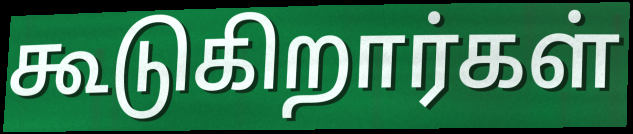
கூடுகிறார்கள்